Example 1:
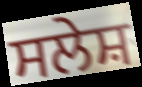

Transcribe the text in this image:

ਸਲੇਸ਼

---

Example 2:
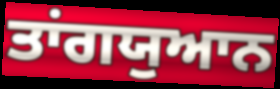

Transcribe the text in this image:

ਤਾਂਗਯੁਆਨ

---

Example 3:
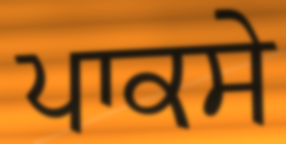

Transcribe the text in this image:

ਪਾਕਸੇ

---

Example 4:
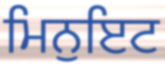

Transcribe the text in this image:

ਮਿਨੁਇਟ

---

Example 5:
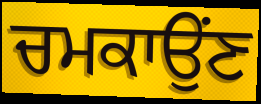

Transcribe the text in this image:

ਚਮਕਾਉਂਣ